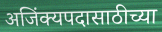
अजिंक्यपदासाठीच्या